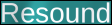
Resound